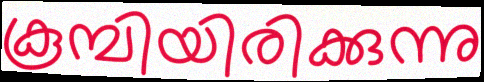
കൂമ്പിയിരിക്കുന്നു